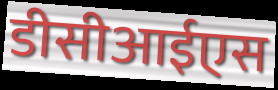
डीसीआईएस